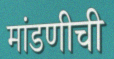
मांडणीची